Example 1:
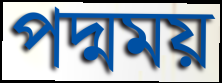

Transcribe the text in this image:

পদ্মময়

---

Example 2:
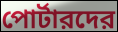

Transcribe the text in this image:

পোর্টারদের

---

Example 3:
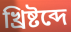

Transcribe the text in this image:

খ্রিষ্টব্দে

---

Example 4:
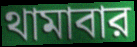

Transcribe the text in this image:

থামাবার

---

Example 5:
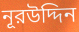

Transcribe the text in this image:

নূরউদ্দিন